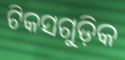
ଟିକସଗୁଡ଼ିକ